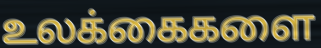
உலக்கைகளை